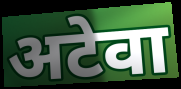
अटेवा